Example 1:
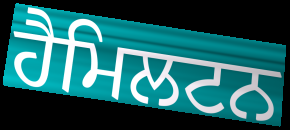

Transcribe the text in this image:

ਹੈਮਿਲਟਨ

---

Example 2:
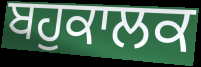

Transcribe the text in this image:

ਬਹੁਕਾਲਕ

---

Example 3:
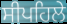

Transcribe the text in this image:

ਸੀਪਹਿਲੇ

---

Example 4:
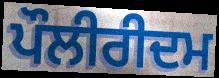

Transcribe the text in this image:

ਪੌਲੀਰੀਦਮ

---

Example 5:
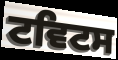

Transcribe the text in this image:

ਟਵਿਟਸ